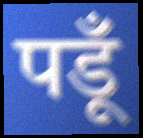
पडूँ